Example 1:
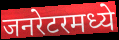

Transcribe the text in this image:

जनरेटरमध्ये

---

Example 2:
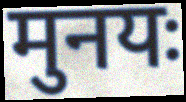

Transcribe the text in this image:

मुनयः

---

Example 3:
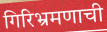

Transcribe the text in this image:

गिरिभ्रमणाची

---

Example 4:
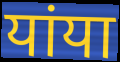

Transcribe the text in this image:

यांया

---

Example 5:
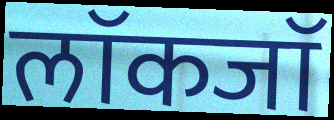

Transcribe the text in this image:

लॉकजॉ